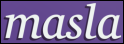
masla